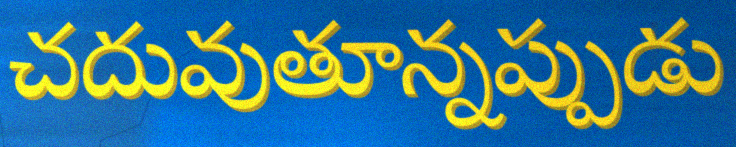
చదువుతూన్నప్పుడు